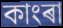
কাংৰা